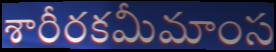
శారీరకమీమాంస